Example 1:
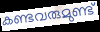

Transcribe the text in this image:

കണ്ടവരുമുണ്ട്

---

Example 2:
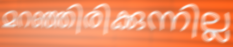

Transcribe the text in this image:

മറഞ്ഞിരിക്കുന്നില്ല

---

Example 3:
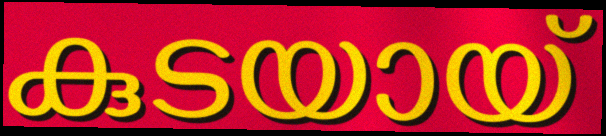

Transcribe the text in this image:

കുടയായ്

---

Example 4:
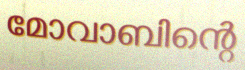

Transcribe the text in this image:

മോവാബിന്റെ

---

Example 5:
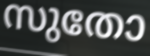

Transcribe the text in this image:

സുതോ